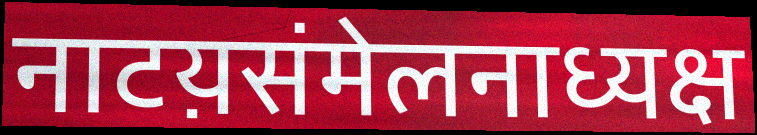
नाटय़संमेलनाध्यक्ष